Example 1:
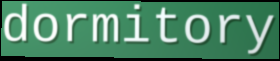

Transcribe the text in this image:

dormitory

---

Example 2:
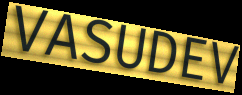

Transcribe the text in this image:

VASUDEV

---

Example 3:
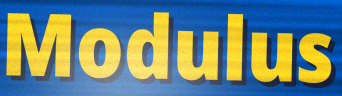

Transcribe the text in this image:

Modulus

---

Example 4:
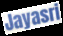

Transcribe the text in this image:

Jayasri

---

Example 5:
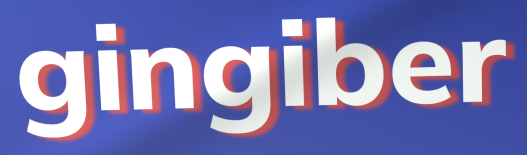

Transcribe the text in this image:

gingiber